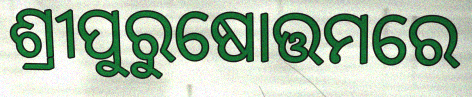
ଶ୍ରୀପୁରୁଷୋତ୍ତମରେ